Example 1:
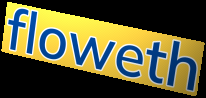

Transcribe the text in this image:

floweth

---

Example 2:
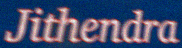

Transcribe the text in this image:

Jithendra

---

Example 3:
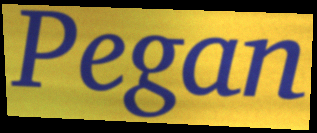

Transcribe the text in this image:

Pegan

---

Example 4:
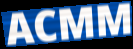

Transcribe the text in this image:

ACMM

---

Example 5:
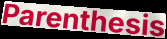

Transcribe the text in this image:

Parenthesis